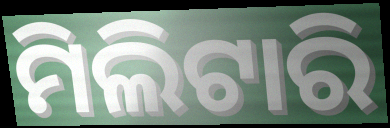
ମିଲିଟାରି